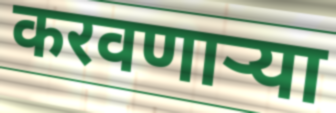
करवणाऱ्या